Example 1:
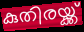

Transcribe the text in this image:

കുതിരയ്ക്ക്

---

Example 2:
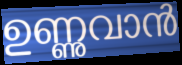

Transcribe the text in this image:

ഉണ്ണുവാൻ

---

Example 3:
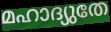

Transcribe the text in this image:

മഹാദ്യുതേ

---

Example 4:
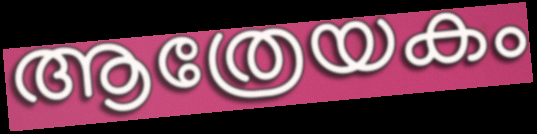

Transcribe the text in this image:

ആത്രേയകം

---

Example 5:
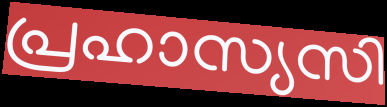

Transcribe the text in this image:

പ്രഹാസ്യസി